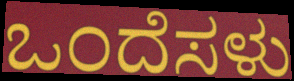
ಒಂದೆಸಳು